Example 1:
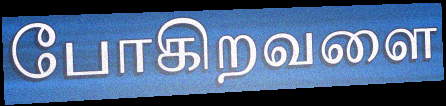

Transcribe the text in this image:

போகிறவளை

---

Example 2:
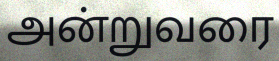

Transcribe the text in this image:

அன்றுவரை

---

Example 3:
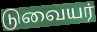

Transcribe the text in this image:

டுவையர்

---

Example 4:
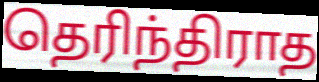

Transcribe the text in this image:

தெரிந்திராத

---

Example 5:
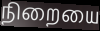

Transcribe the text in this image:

நிறையை